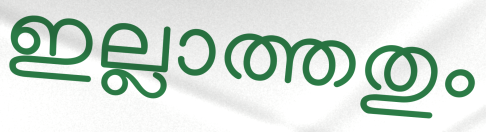
ഇല്ലാത്തതും